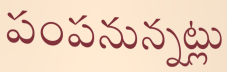
పంపనున్నట్లు